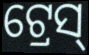
ଟ୍ରେସ୍